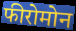
फीरोमोन